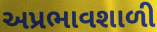
અપ્રભાવશાળી